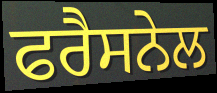
ਫਰੈਸਨੇਲ